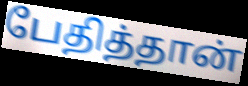
பேதித்தான்